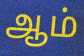
ஆம்